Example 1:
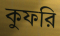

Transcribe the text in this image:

কুফরি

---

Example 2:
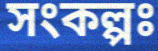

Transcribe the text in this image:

সংকল্পঃ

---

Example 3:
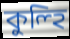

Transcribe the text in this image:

কুল্হি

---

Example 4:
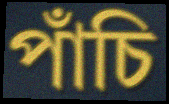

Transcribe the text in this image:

পাঁচি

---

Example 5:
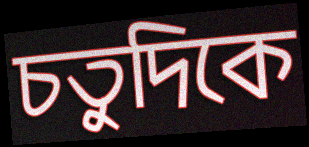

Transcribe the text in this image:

চতুদিকে